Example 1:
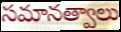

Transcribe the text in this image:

సమానత్వాలు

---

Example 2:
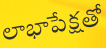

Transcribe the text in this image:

లాభాపేక్షతో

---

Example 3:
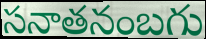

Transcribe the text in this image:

సనాతనంబగు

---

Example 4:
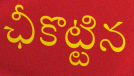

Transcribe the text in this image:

ఛీకొట్టిన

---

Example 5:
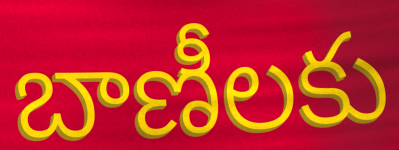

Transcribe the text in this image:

బాణీలకు